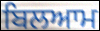
ਬਿਲਆਮ